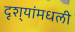
दृश्यांमधली